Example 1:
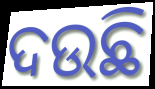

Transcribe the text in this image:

ଦଉଛି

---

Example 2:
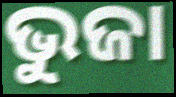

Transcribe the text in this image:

ଭୁଜା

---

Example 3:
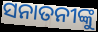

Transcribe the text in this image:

ସନାତନୀଙ୍କୁ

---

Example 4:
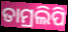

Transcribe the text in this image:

ତାମ୍ରଲିପି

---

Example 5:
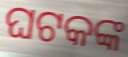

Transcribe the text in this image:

ଘଟକଙ୍କ